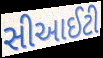
સીઆઈટી